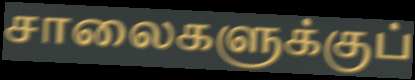
சாலைகளுக்குப்